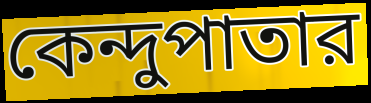
কেন্দুপাতার